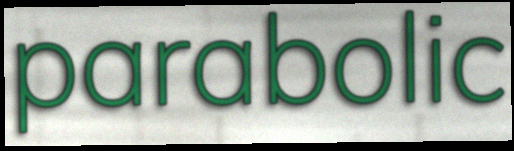
parabolic